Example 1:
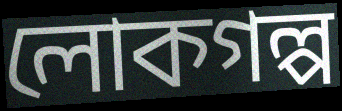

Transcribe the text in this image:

লোকগল্প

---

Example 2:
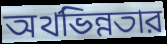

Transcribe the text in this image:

অর্থভিন্নতার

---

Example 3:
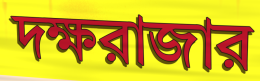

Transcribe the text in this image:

দক্ষরাজার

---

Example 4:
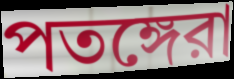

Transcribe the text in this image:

পতঙ্গেরা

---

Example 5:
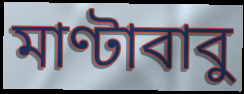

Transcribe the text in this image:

মাণ্টাবাবু